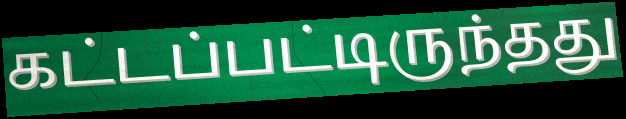
கட்டப்பட்டிருந்தது